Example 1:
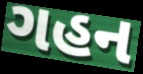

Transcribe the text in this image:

ગહન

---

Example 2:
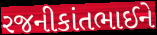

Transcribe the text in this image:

રજનીકાંતભાઈને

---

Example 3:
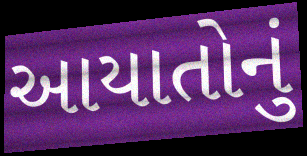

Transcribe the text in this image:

આયાતોનું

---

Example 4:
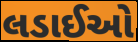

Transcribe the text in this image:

લડાઈઓ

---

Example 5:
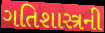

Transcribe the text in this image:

ગતિશાસ્ત્રની